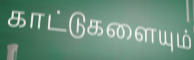
காட்டுகளையும்